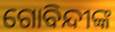
ଗୋବିନ୍ଦୀଙ୍କ